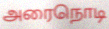
அரைநொடி